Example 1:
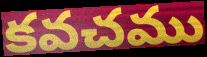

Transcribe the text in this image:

కవచము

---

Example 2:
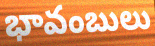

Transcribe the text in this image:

భావంబులు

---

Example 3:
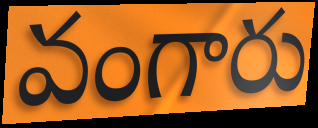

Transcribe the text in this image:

వంగారు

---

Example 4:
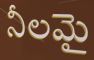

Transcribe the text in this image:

నీలమై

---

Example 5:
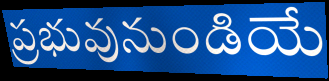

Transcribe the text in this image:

ప్రభువునుండియే